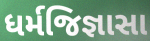
ધર્મજિજ્ઞાસા